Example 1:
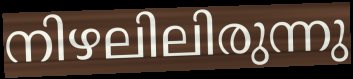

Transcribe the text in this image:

നിഴലിലിരുന്നു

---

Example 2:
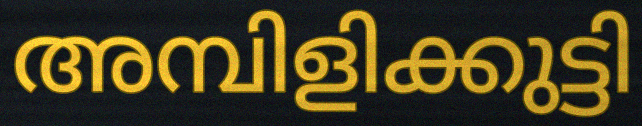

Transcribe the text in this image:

അമ്പിളിക്കുട്ടി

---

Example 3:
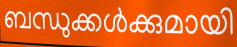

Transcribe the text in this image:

ബന്ധുക്കൾക്കുമായി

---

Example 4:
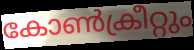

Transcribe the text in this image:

കോൺക്രീറ്റും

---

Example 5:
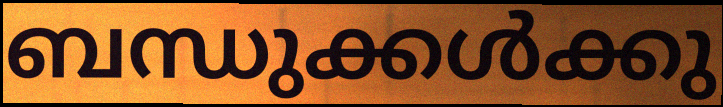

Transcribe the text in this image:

ബന്ധുക്കൾക്കു